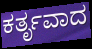
ಕರ್ತೃವಾದ